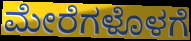
ಮೇರೆಗಳೊಳಗೆ